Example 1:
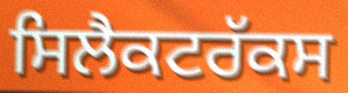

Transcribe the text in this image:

ਸਿਲੈਕਟਰੱਕਸ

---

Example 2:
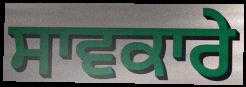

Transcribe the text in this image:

ਸਾਵਕਾਰੇ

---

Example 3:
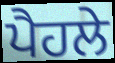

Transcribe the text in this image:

ਪੈਹਲੇ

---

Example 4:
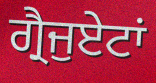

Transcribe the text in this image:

ਗ੍ਰੈਜੁਏਟਾਂ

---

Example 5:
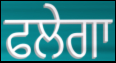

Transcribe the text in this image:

ਫਲੇਗਾ